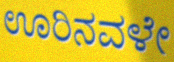
ಊರಿನವಳೇ